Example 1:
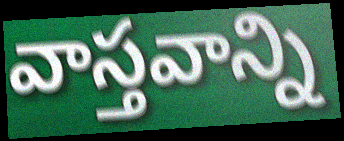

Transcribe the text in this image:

వాస్తవాన్ని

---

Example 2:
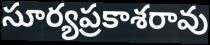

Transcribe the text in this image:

సూర్యప్రకాశరావు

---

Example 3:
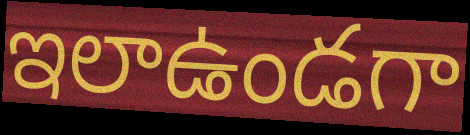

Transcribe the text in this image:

ఇలాఉండగా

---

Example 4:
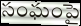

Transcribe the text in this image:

సంఘంపై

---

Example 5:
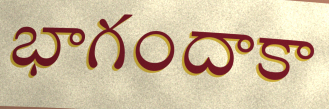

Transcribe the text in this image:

భాగందాకా